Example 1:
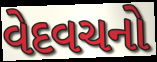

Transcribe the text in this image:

વેદવચનો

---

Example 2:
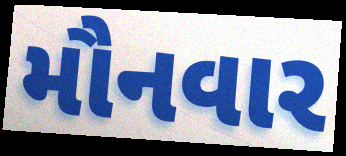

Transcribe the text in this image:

મૌનવાર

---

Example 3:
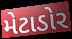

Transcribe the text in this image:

મેટાડોર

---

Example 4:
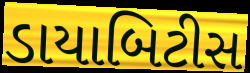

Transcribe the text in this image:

ડાયાબિટીસ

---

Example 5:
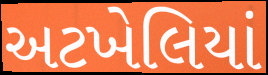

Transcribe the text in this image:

અટખેલિયાં